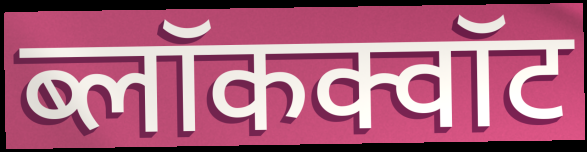
ब्लॉकक्वॉट